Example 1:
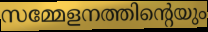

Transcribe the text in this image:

സമ്മേളനത്തിന്റെയും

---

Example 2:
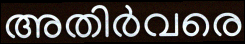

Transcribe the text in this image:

അതിർവരെ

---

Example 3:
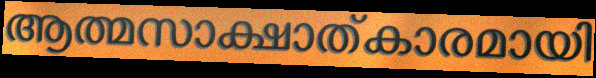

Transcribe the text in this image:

ആത്മസാക്ഷാത്കാരമായി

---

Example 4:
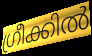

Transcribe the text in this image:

ഗ്രീക്കിൽ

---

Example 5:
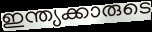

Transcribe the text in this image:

ഇന്ത്യക്കാരുടെ